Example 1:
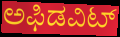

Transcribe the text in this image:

ಅಫಿಡವಿಟ್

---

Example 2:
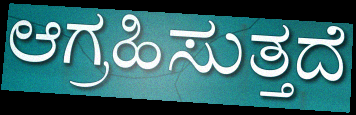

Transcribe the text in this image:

ಆಗ್ರಹಿಸುತ್ತದೆ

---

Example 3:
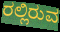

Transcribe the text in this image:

ರಲ್ಲಿರುವ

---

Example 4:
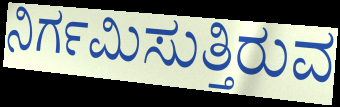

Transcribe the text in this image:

ನಿರ್ಗಮಿಸುತ್ತಿರುವ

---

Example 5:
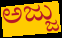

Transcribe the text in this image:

ಅಜ್ಜು